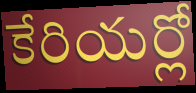
కేరియర్లో